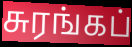
சுரங்கப்